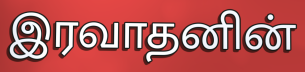
இரவாதனின்